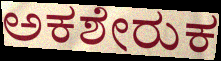
ಅಕಶೇರುಕ